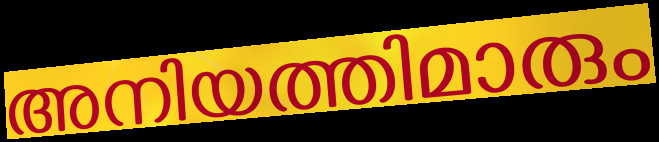
അനിയത്തിമാരും